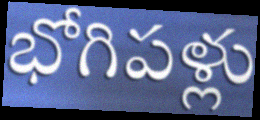
భోగిపళ్లు